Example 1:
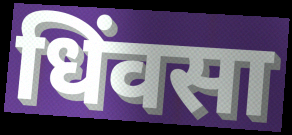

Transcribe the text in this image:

धिंवसा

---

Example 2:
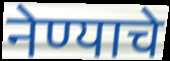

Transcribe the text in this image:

नेण्याचे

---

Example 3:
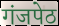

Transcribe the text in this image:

गंजपेठ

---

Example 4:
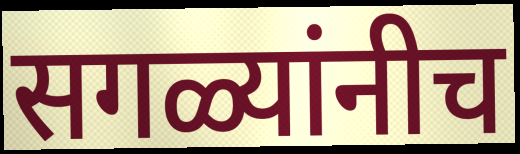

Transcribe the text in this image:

सगळ्यांनीच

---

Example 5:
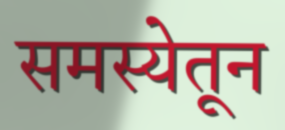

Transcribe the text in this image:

समस्येतून